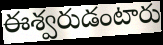
ఈశ్వరుడంటారు